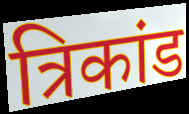
त्रिकांड